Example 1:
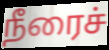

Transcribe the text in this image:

நீரைச்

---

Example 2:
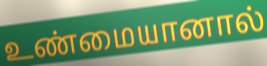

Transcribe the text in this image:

உண்மையானால்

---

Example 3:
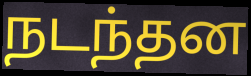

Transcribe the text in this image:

நடந்தன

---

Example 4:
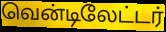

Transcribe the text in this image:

வென்டிலேட்டர்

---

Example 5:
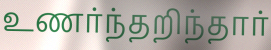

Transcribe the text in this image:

உணர்ந்தறிந்தார்